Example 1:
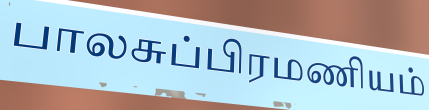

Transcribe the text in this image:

பாலசுப்பிரமணியம்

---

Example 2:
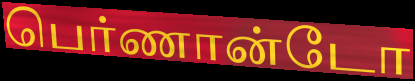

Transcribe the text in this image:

பெர்ணான்டோ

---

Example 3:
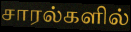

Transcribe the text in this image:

சாரல்களில்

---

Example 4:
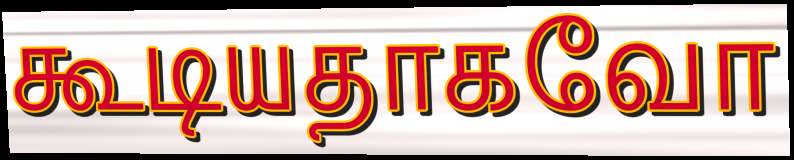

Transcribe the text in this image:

கூடியதாகவோ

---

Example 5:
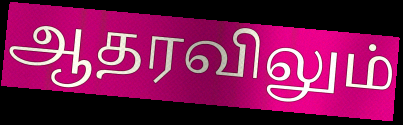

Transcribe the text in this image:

ஆதரவிலும்